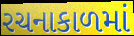
રચનાકાળમાં